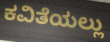
ಕವಿತೆಯಲ್ಲು